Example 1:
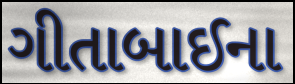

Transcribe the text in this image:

ગીતાબાઈના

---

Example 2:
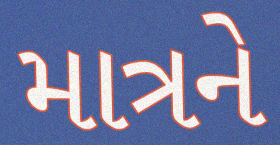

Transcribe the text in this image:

માત્રને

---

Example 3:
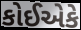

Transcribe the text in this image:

કોઈએકે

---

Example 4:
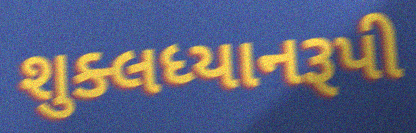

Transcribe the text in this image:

શુક્લધ્યાનરૂપી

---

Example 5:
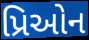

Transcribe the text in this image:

પ્રિઓન